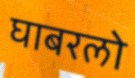
घाबरलो